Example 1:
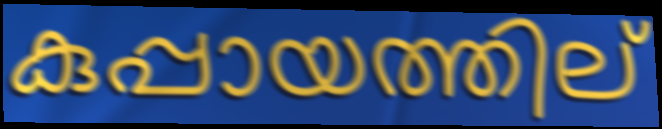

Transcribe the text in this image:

കുപ്പായത്തില്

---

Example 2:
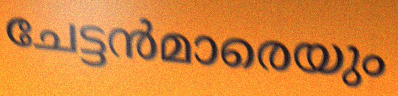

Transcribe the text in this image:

ചേട്ടൻമാരെയും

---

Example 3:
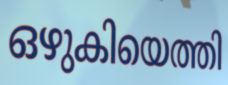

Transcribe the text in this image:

ഒഴുകിയെത്തി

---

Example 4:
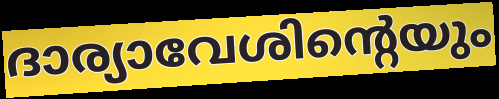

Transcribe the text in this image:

ദാര്യാവേശിന്റെയും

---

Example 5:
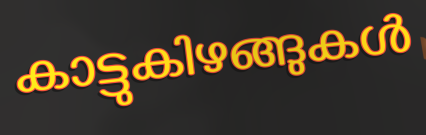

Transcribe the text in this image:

കാട്ടുകിഴങ്ങുകൾ